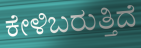
ಕೇಳಿಬರುತ್ತಿದೆ